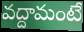
వద్దామంటే